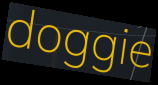
doggie